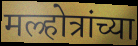
मल्होत्रांच्या